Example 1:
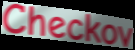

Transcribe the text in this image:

Checkov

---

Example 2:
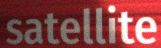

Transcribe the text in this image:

satellite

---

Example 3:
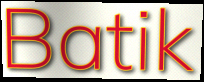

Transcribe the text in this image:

Batik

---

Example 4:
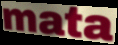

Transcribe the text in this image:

mata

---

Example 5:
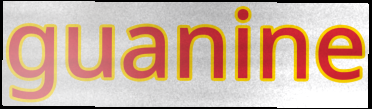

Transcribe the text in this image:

guanine